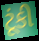
ટૂંકી